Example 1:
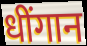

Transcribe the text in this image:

धींगान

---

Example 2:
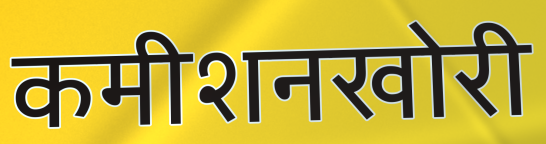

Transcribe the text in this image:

कमीशनखोरी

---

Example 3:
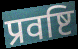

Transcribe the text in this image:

प्रवष्टि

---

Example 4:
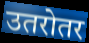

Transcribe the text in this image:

उतरोतर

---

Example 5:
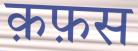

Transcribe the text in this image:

क़फ़स